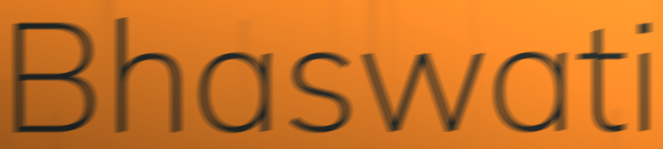
Bhaswati